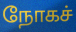
நோகச்